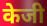
केजी